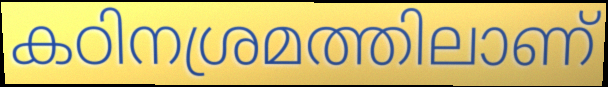
കഠിനശ്രമത്തിലാണ്